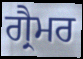
ਗ੍ਰੈਮਰ